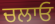
ਚਲਾਓ